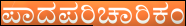
ಪಾದಪರಿಚಾರಿಕಂ